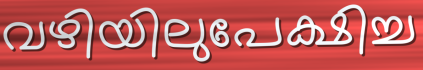
വഴിയിലുപേക്ഷിച്ച